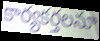
కార్యకర్తలనూ